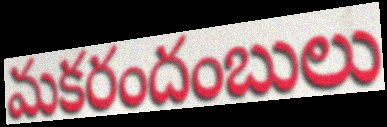
మకరందంబులు